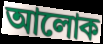
আলোক